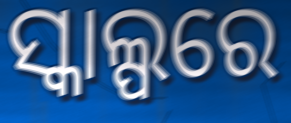
ସ୍କାଲ୍ପରେ